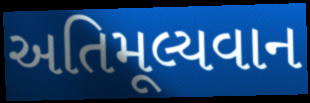
અતિમૂલ્યવાન